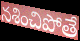
నశించిపోతే